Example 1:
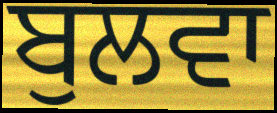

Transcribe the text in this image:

ਬੁਲਵਾ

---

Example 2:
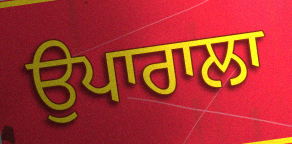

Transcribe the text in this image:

ਉਪਾਰਾਲਾ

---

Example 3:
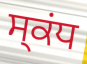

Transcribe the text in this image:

ਸ੍ਕਂਧ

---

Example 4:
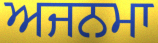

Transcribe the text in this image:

ਅਜਨਮਾ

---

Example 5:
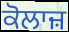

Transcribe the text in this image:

ਕੋਲਾਜ਼